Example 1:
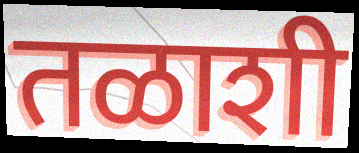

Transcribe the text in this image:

तळाशी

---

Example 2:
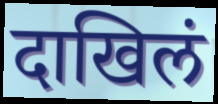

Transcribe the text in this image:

दाखिलं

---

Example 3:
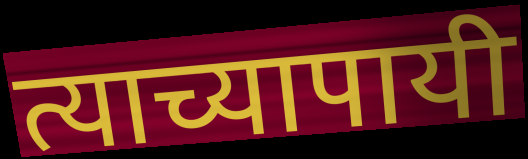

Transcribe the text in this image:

त्याच्यापायी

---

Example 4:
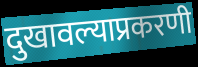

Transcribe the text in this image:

दुखावल्याप्रकरणी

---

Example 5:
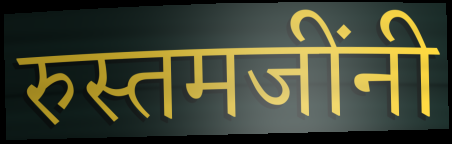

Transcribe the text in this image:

रुस्तमजींनी